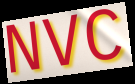
NVC